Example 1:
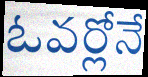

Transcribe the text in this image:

ఓవర్లోనే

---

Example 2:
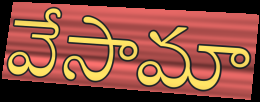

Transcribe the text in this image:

వేసామా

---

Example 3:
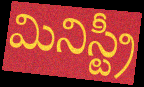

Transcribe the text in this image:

మినిస్ట్రీ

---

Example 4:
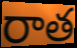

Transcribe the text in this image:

రాత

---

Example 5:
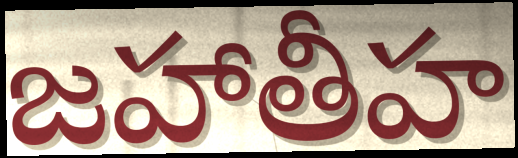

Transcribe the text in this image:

జహాతీహ